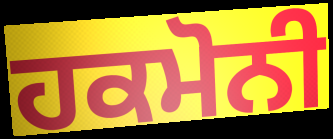
ਹਕਮੋਨੀ